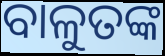
ବାଳୁତଙ୍କ